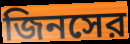
জিনসের